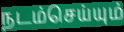
நடம்செய்யும்